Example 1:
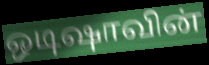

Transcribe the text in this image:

ஒடிஷாவின்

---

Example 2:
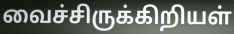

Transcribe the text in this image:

வைச்சிருக்கிறியள்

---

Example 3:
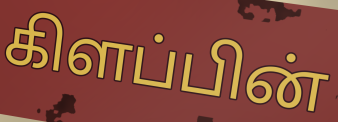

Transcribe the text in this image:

கிளப்பின்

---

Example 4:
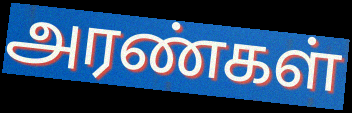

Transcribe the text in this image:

அரண்கள்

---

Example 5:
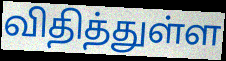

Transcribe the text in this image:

விதித்துள்ள